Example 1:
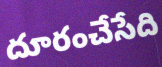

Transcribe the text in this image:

దూరంచేసేది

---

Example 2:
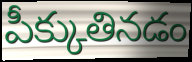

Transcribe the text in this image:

పీక్కుతినడం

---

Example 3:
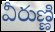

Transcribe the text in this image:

వీరుణ్ణి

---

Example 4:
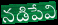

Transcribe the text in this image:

నడిపేవి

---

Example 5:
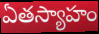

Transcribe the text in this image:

ఏతస్యాహం